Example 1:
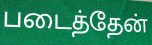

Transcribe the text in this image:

படைத்தேன்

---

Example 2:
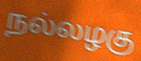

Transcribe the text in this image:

நல்லழகு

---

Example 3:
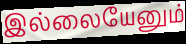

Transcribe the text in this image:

இல்லையேனும்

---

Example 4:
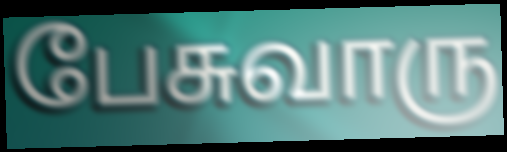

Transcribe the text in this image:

பேசுவாரு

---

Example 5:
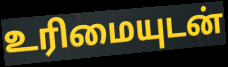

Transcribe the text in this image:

உரிமையுடன்